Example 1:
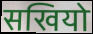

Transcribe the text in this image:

सखियो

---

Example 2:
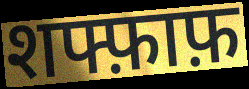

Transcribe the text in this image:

शफ्फ़ाफ़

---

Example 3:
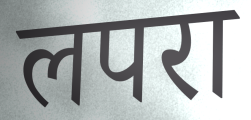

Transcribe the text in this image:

लपरा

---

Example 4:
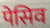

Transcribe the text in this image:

पेसिव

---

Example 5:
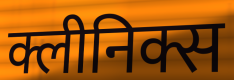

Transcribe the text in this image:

क्लीनिक्स